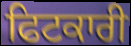
ਫਿਟਕਾਰੀ